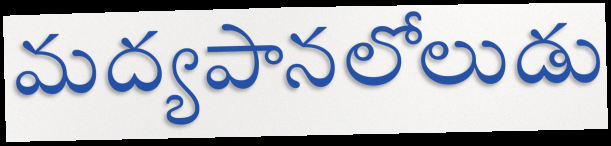
మద్యపానలోలుడు